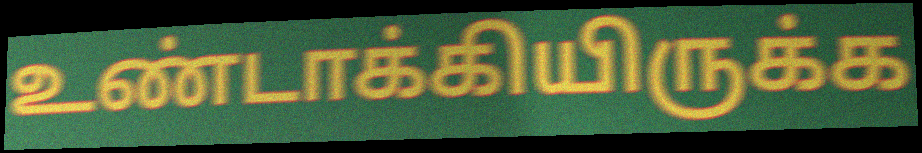
உண்டாக்கியிருக்க